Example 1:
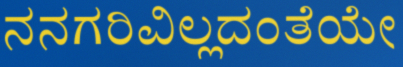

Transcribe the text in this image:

ನನಗರಿವಿಲ್ಲದಂತೆಯೇ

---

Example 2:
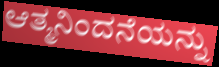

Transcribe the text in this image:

ಆತ್ಮನಿಂದನೆಯನ್ನು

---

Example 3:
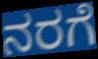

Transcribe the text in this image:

ನರಗೆ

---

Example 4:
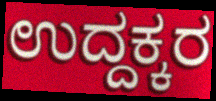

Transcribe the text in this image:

ಉದ್ದಕ್ಕರ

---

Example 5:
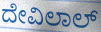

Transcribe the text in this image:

ದೇವಿಲಾಲ್